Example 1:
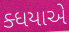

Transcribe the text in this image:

ક્ધયાએ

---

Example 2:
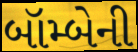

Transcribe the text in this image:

બૉમ્બેની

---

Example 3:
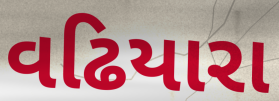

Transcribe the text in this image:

વઢિયારા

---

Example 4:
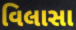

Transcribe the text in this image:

વિલાસા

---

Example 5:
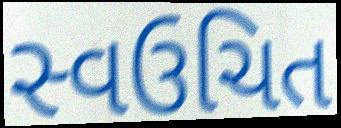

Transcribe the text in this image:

સ્વઉચિત